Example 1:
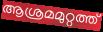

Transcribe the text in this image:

ആശ്രമമുറ്റത്ത്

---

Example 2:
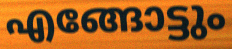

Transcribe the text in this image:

എങ്ങോട്ടും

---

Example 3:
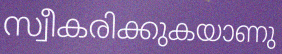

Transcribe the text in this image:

സ്വീകരിക്കുകയാണു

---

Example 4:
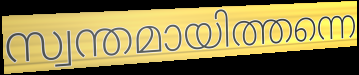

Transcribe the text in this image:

സ്വന്തമായിത്തന്നെ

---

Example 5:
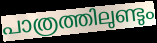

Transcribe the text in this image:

പാത്രത്തിലുണ്ടും